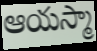
ఆయస్మా